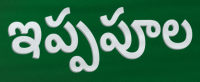
ఇప్పపూల